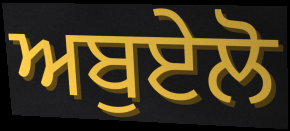
ਅਬੁਏਲੋ